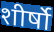
शीर्षो